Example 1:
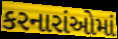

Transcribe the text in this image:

કરનારાંઓમાં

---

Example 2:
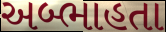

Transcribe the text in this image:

અબ્ભાહતા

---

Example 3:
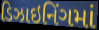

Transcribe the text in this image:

ડિઝાઇનિંગમાં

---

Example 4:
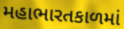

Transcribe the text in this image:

મહાભારતકાળમાં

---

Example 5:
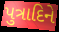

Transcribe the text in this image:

પુત્રાદિને